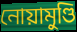
নোয়ামুণ্ডি